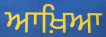
ਆਖ਼ਿਆ